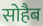
सोहैब